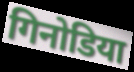
गिनोडिया